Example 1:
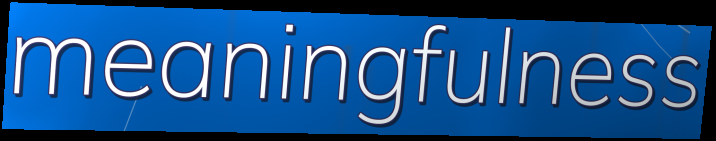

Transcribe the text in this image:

meaningfulness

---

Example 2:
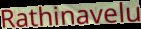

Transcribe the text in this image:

Rathinavelu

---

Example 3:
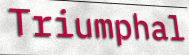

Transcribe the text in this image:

Triumphal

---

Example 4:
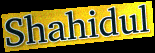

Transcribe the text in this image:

Shahidul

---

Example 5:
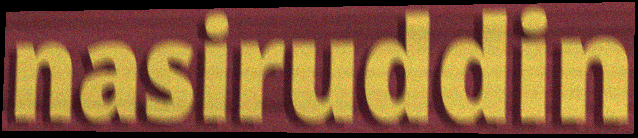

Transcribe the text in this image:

nasiruddin